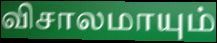
விசாலமாயும்